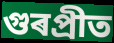
গুৰপ্ৰীত